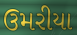
ઉમરીયા